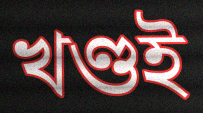
খণ্ডই